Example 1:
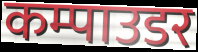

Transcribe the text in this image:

कम्पाउडर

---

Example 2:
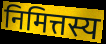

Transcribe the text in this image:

निमित्तस्य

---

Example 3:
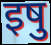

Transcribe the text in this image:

इषु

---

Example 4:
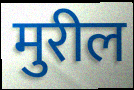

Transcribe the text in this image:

मुरील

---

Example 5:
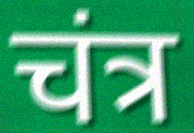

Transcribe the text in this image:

चंत्र